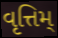
વૃત્તિમ્